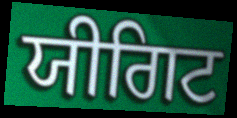
ਯੀਗਿਟ